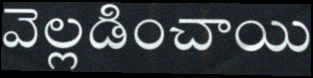
వెల్లడించాయి